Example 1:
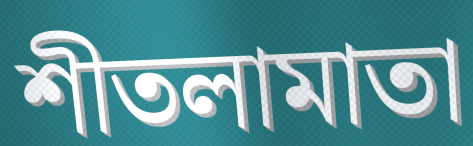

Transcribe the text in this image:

শীতলামাতা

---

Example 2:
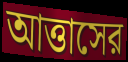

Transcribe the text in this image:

আত্তাসের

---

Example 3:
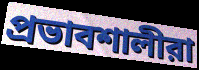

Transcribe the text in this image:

প্রভাবশালীরা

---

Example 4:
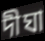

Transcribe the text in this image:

দীঘা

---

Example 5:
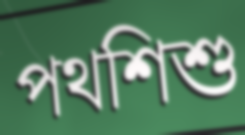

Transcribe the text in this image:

পথশিশু